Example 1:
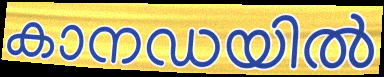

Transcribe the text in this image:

കാനഡയിൽ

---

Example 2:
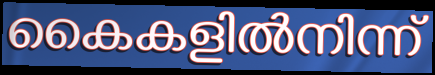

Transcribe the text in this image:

കൈകളിൽനിന്ന്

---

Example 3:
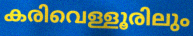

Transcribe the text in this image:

കരിവെള്ളൂരിലും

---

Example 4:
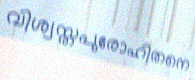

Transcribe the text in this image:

വിശ്വസ്തപുരോഹിതനെ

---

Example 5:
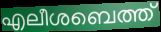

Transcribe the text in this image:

എലീശബെത്ത്